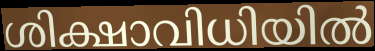
ശിക്ഷാവിധിയിൽ